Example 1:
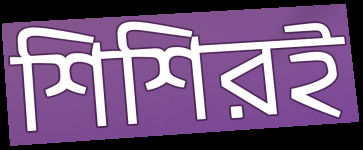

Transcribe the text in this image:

শিশিরই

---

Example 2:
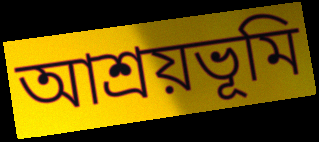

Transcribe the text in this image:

আশ্রয়ভূমি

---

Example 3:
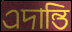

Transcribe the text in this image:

এদান্তি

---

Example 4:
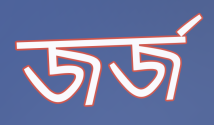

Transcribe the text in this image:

জর্জ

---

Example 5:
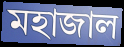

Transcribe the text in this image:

মহাজাল